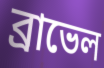
ব্রাভেল